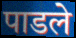
पाडले